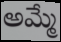
అమ్మే